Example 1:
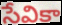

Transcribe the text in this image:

సేవికా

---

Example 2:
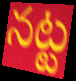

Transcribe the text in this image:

నట్ట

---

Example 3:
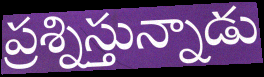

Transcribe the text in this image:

ప్రశ్నిస్తున్నాడు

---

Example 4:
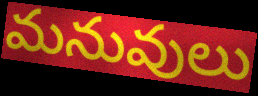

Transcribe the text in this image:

మనువులు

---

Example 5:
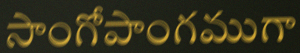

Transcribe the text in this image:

సాంగోపాంగముగా